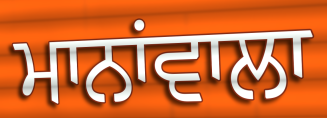
ਮਾਨਾਂਵਾਲਾ